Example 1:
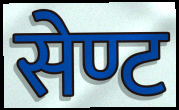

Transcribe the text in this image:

सेण्ट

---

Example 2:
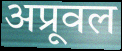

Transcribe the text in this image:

अप्रूवल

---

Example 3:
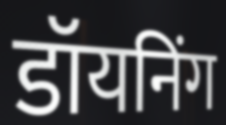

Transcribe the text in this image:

डॉयनिंग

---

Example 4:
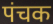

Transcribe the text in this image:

पंचक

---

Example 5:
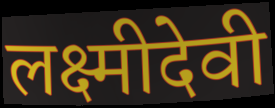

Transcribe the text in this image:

लक्ष्मीदेवी